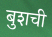
बुशची